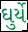
ઘુર્યે